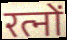
रत्‍नों